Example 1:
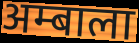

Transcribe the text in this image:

अम्बाला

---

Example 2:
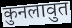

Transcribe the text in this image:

कुनलावुत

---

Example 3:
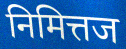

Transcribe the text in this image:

निमित्तज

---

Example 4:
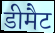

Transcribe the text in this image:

डीमैट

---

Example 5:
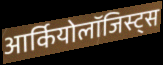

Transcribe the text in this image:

आर्कियोलॉजिस्ट्स